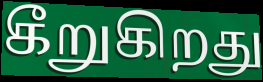
கீறுகிறது